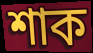
শাক